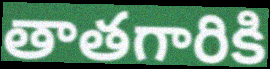
తాతగారికి